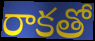
రాకతో